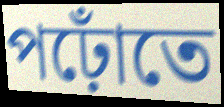
পঢ়োঁতে